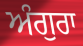
ਅੰਗੁਰਾ